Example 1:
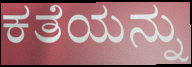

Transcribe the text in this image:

ಕತೆಯನ್ನು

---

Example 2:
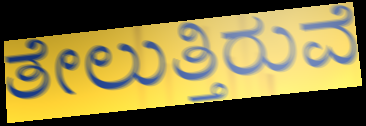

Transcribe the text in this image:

ತೇಲುತ್ತಿರುವೆ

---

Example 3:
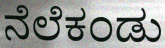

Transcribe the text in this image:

ನೆಲೆಕಂಡು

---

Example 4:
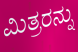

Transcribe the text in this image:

ಮಿತ್ರರನ್ನು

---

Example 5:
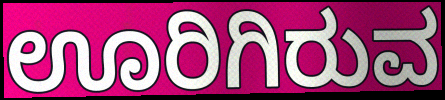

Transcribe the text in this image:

ಊರಿಗಿರುವ